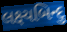
લક્ષ્યબિન્દુ